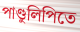
পাণ্ডুলিপিতে